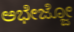
ಅಭೇಜ್ಜೋ